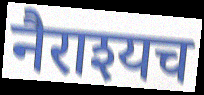
नैराश्यच